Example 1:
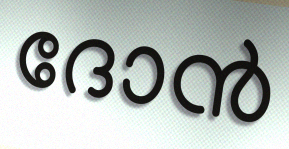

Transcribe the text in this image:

ദോൻ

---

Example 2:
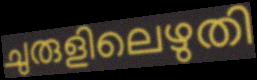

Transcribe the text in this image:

ചുരുളിലെഴുതി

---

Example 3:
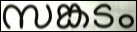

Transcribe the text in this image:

സങ്കടം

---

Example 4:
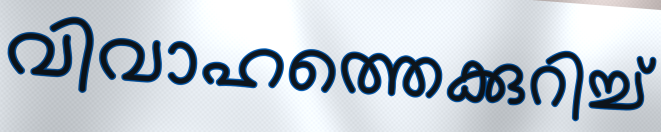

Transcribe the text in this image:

വിവാഹത്തെക്കുറിച്ച്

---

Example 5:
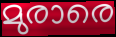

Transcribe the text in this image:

മുരാരെ